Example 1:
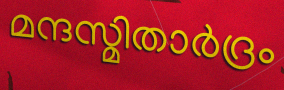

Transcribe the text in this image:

മന്ദസ്മിതാർദ്രം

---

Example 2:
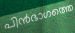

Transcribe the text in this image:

പിൻഭാഗത്തെ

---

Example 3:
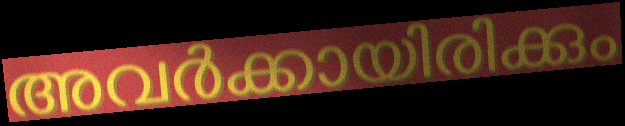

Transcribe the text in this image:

അവർക്കായിരിക്കും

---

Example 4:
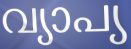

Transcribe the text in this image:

വ്യാപ്യ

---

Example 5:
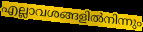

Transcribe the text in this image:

എല്ലാവശങ്ങളിൽനിന്നും